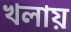
খলায়